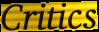
Critics